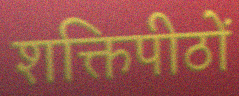
शक्तिपीठों